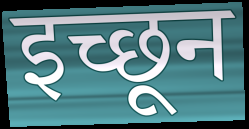
इच्छून